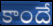
కాందే